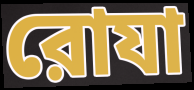
রোযা